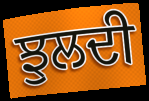
ਝੁਲਦੀ